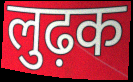
लुढ़क